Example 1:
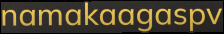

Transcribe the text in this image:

namakaagaspv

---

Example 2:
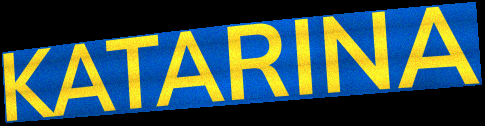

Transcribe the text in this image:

KATARINA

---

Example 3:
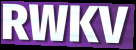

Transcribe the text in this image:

RWKV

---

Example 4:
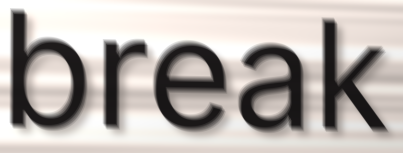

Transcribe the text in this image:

break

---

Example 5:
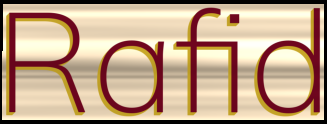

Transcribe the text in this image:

Rafid